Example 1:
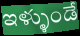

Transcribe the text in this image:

ఇళ్ళుండే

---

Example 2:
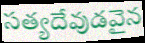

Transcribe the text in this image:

సత్యదేవుడవైన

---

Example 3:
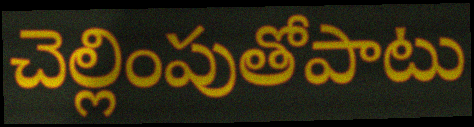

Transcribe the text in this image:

చెల్లింపుతోపాటు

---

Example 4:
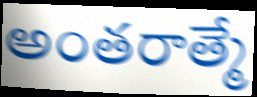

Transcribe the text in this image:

అంతరాత్మే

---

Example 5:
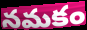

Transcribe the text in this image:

నమకం